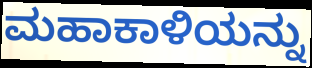
ಮಹಾಕಾಳಿಯನ್ನು